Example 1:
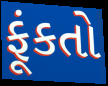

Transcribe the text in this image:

ફૂંકતો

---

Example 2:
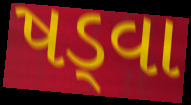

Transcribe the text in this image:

ષડ્વા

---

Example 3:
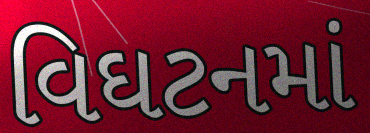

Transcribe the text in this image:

વિઘટનમાં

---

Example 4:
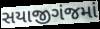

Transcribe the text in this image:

સયાજીગંજમાં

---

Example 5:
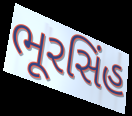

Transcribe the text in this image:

ભૂરસિંહ